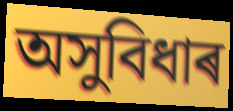
অসুবিধাৰ